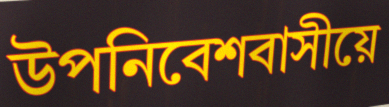
উপনিবেশবাসীয়ে